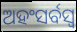
ଅହଂସର୍ବସ୍ୱ